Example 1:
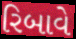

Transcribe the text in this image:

રિબાવે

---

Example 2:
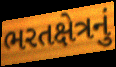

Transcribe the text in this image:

ભરતક્ષેત્રનું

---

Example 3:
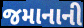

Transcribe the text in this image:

જમાનાની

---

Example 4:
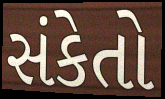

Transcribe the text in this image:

સંકેતો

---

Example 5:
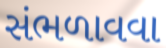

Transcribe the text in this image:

સંભળાવવા